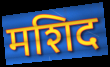
मशिद